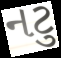
નટુ